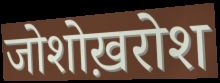
जोशोख़रोश